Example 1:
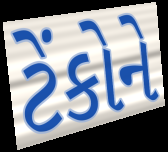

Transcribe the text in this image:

ટેંકોને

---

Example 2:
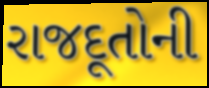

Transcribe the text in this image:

રાજદૂતોની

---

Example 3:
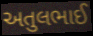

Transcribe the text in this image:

અતુલભાઈ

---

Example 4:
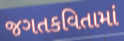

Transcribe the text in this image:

જગતકવિતામાં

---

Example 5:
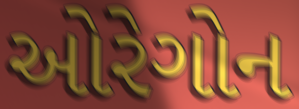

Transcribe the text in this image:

ઓરેગોન